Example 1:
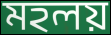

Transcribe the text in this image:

মহলয়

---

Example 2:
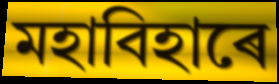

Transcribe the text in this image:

মহাবিহাৰে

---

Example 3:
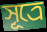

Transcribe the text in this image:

সূত্ৰে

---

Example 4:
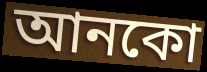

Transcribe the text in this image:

আনকো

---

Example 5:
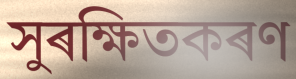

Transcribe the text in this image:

সুৰক্ষিতকৰণ